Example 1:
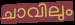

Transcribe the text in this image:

ചാവിലും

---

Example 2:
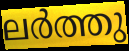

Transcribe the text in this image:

ലർത്തു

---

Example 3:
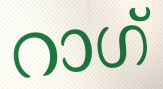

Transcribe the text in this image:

റാഗ്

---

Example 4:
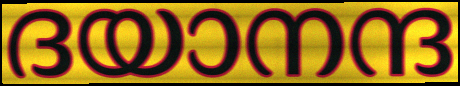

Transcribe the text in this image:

ദയാനന്ദ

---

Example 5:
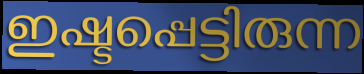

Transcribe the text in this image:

ഇഷ്ടപ്പെട്ടിരുന്ന